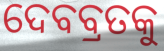
ଦେବବ୍ରତକୁ